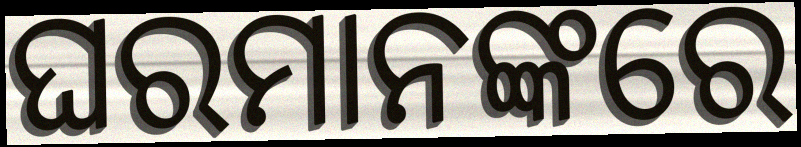
ଘରମାନଙ୍କରେ